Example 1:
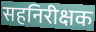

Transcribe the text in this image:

सहनिरीक्षक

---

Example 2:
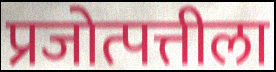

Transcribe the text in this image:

प्रजोत्पत्तीला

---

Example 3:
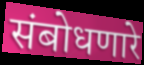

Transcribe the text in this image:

संबोधणारे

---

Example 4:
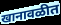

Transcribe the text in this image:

खानावळीत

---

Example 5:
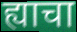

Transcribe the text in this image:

ह्याचा